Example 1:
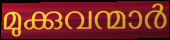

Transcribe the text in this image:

മുക്കുവന്മാർ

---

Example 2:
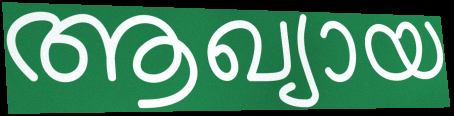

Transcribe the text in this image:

ആഖ്യായ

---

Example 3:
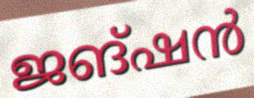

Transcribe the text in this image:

ജങ്ഷൻ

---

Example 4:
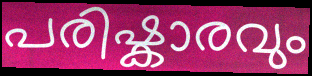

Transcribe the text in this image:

പരിഷ്കാരവും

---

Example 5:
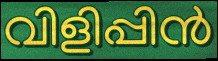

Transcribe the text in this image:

വിളിപ്പിൻ